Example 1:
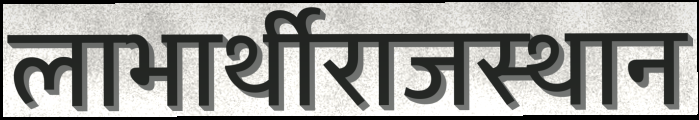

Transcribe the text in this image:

लाभार्थीराजस्थान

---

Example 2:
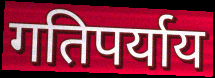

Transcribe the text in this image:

गतिपर्याय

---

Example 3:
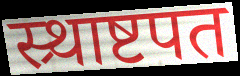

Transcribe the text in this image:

स्र्थाष्टपत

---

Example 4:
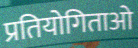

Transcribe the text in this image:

प्रतियोगिताओ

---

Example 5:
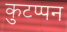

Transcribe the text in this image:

कुटप्पन